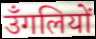
उँगलियों